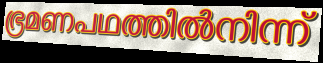
ഭ്രമണപഥത്തിൽനിന്ന്